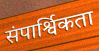
संपार्श्विकता